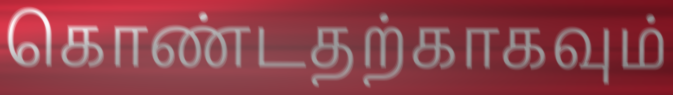
கொண்டதற்காகவும்